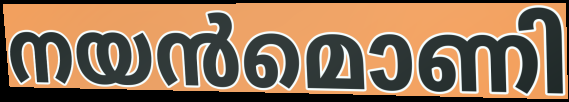
നയൻമൊണി